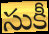
సుకీ